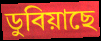
ডুবিয়াছে